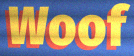
Woof